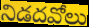
నిడదవోలు